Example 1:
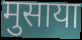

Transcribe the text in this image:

मुसाया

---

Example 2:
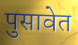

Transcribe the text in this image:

पुसावेत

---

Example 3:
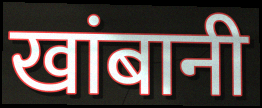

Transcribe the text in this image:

खांबानी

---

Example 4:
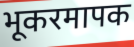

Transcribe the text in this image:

भूकरमापक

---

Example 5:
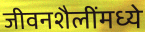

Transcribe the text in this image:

जीवनशैलींमध्ये